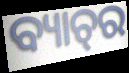
ବ୍ୟାଚ୍‌ର